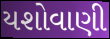
યશોવાણી